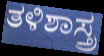
ತಳಿಶಾಸ್ತ್ರ